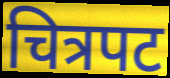
चित्रपट